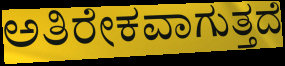
ಅತಿರೇಕವಾಗುತ್ತದೆ